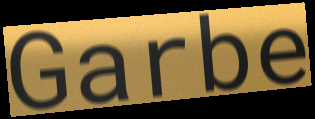
Garbe